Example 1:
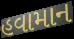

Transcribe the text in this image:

હવામાન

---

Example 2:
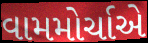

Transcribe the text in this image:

વામમોર્ચાએ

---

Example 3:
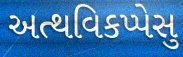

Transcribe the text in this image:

અત્થવિકપ્પેસુ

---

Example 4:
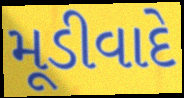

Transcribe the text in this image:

મૂડીવાદે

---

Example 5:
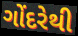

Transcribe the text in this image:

ગોંદરેથી